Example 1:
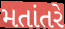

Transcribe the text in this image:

મતાંતરે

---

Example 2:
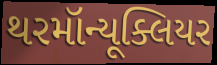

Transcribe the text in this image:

થરમૉન્યૂક્લિયર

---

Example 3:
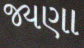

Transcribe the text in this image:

જ્યણા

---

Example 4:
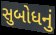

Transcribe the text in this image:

સુબોધનું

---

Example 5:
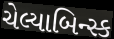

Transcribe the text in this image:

ચેલ્યાબિન્સ્ક